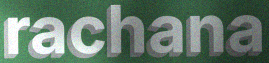
rachana